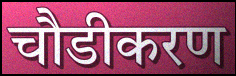
चौडीकरण